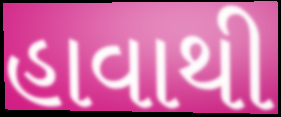
હાવાથી